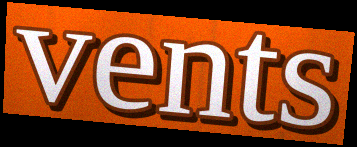
vents